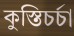
কুস্তিচর্চা